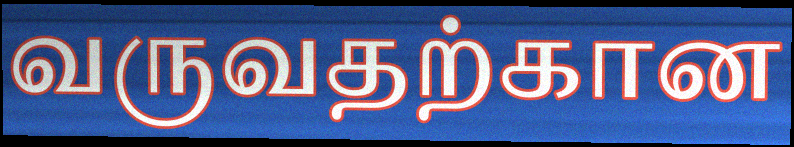
வருவதற்கான